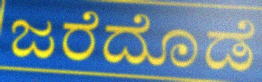
ಜರೆದೊಡೆ